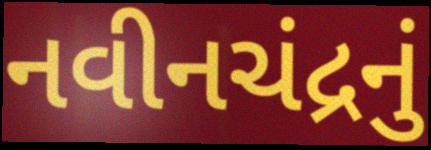
નવીનચંદ્રનું